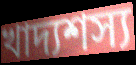
খাদ্যশস্য